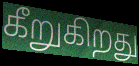
கீறுகிறது